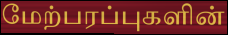
மேற்பரப்புகளின்